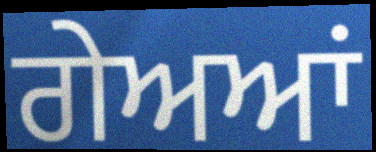
ਗੇਅਆਂ